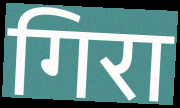
गिरा